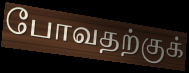
போவதற்குக்